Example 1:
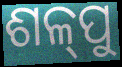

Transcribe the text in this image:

ଶଳ୍‍ପୁ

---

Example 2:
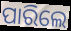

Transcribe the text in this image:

ପାରିଲେ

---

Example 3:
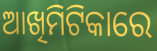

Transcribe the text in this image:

ଆଖିମିଟିକାରେ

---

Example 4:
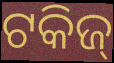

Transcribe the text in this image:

ଟକିଜ୍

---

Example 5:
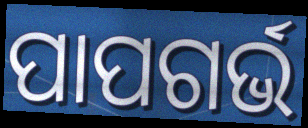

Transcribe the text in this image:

ପାପଗର୍ଭ